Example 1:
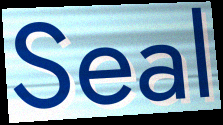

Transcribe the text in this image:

Seal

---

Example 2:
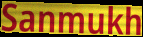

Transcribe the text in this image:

Sanmukh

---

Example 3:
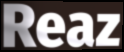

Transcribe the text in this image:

Reaz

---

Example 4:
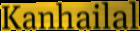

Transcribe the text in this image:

Kanhailal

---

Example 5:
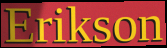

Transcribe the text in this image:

Erikson